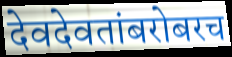
देवदेवतांबरोबरच